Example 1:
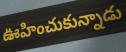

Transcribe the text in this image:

ఊహించుకున్నాడు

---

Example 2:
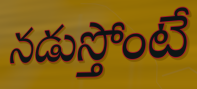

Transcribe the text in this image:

నడుస్తోంటే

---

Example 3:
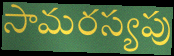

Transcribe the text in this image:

సామరస్యపు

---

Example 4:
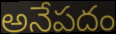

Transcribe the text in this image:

అనేపదం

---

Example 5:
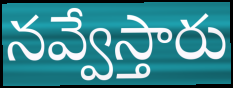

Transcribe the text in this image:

నవ్వేస్తారు